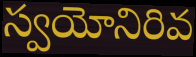
స్వయోనిరివ